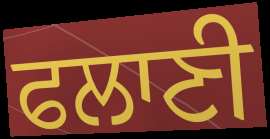
ਫਲਾਣੀ